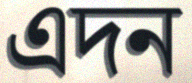
এদন